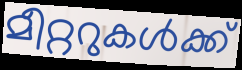
മീറ്ററുകൾക്ക്